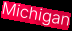
Michigan